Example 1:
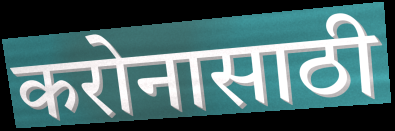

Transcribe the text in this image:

करोनासाठी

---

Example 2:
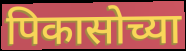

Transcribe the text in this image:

पिकासोच्या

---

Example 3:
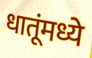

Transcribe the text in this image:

धातूंमध्ये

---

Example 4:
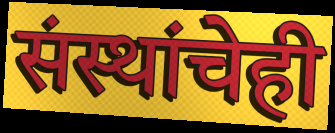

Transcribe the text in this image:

संस्थांचेही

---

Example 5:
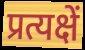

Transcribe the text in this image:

प्रत्यक्षें